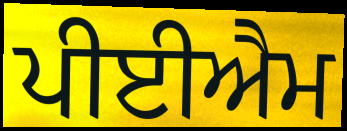
ਪੀਈਐਮ